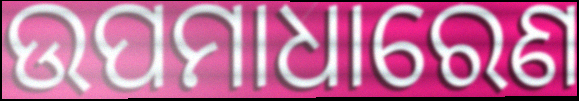
ଉପମାଧାରେଣ